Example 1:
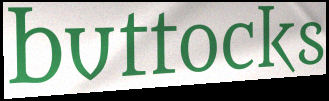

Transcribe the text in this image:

buttocks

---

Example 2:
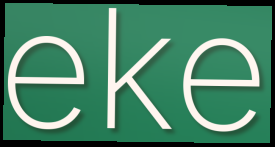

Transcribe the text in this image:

eke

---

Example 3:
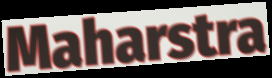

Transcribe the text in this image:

Maharstra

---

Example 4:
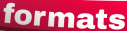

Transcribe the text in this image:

formats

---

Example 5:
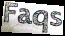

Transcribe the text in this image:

Faqs